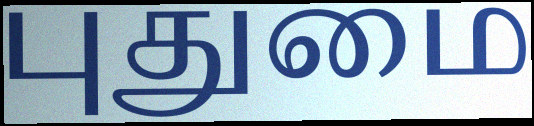
புதுமை